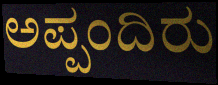
ಅಪ್ಪಂದಿರು